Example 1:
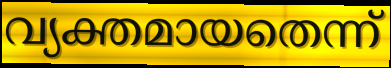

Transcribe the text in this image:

വ്യക്തമായതെന്ന്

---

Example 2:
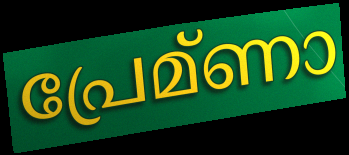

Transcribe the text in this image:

പ്രേമ്ണാ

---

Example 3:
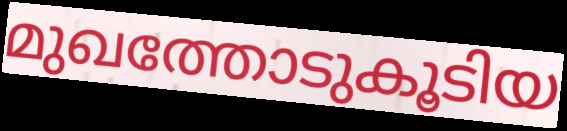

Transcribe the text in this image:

മുഖത്തോടുകൂടിയ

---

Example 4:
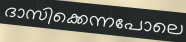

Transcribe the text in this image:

ദാസിക്കെന്നപോലെ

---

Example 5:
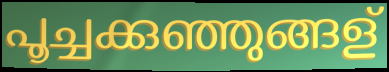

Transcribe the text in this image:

പൂച്ചക്കുഞ്ഞുങ്ങള്